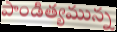
పాండిత్యమున్న